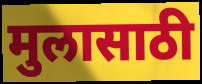
मुलासाठी